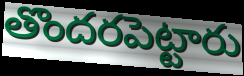
తొందరపెట్టారు